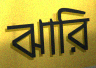
ঝারি